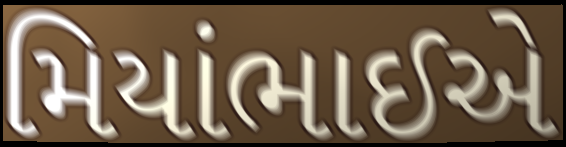
મિયાંભાઈએ